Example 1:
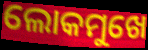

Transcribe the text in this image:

ଲୋକମୁଖେ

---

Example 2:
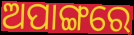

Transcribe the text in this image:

ଅପାଙ୍ଗରେ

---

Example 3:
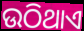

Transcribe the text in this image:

ଉଠିଥାଏ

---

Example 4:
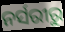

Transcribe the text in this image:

ନର୍ସରୀରୁ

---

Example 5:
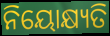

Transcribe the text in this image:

ନିୟୋକ୍ଷ୍ୟତି